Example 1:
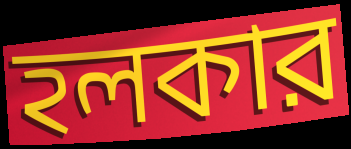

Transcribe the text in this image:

হলকার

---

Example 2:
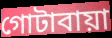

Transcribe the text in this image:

গোটাবায়া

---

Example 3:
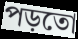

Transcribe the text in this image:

পড়তো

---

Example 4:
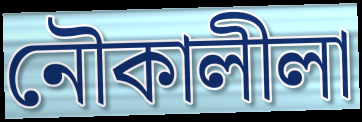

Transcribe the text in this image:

নৌকালীলা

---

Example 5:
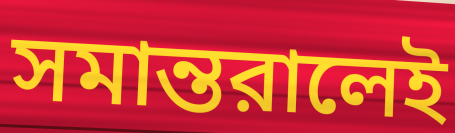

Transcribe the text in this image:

সমান্তরালেই